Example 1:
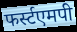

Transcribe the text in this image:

फर्स्टएमपी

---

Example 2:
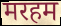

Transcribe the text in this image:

मरहम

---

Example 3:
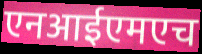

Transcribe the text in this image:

एनआईएमएच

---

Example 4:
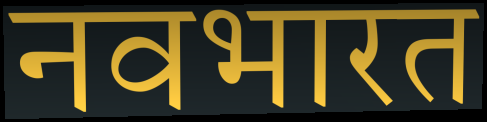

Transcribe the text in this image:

नवभारत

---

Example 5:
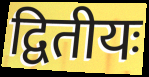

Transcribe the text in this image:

द्वितीयः